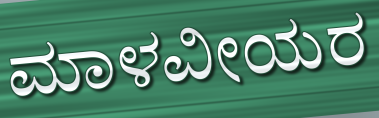
ಮಾಳವೀಯರ